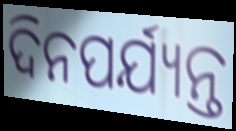
ଦିନପର୍ଯ୍ୟନ୍ତ